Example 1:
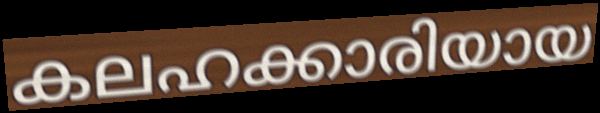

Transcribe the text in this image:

കലഹക്കാരിയായ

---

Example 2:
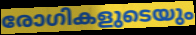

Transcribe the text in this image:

രോഗികളുടെയും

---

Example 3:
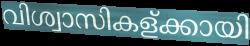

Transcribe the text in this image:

വിശ്വാസികള്ക്കായി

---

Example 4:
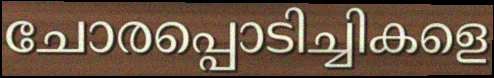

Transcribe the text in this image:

ചോരപ്പൊടിച്ചികളെ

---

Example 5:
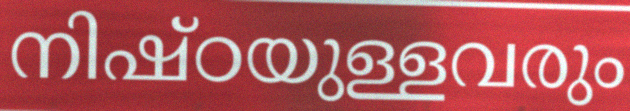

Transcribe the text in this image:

നിഷ്ഠയുള്ളവരും